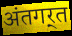
अंतगर्त